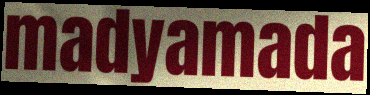
madyamada